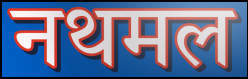
नथमल